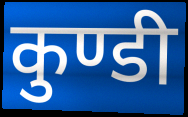
कुण्डी